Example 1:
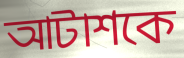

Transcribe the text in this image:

আটাশকে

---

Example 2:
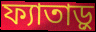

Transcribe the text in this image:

ফ্যাতাড়ু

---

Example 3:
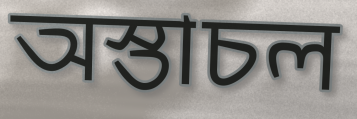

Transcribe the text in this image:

অস্তাচল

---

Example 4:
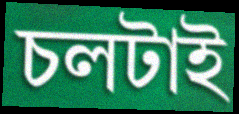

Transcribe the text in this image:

চলটাই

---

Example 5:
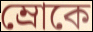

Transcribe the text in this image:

ম্রোকে